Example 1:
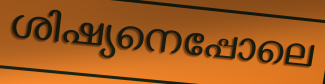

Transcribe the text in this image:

ശിഷ്യനെപ്പോലെ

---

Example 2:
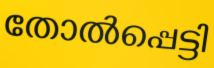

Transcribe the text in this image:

തോൽപ്പെട്ടി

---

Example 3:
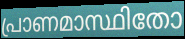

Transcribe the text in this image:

പ്രാണമാസ്ഥിതോ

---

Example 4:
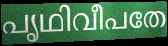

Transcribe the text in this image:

പൃഥിവീപതേ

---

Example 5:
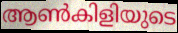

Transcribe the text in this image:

ആൺകിളിയുടെ